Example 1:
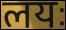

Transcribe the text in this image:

लयः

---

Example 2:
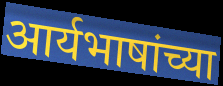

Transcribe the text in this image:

आर्यभाषांच्या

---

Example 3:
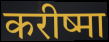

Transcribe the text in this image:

करीष्मा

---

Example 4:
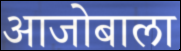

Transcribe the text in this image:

आजोबाला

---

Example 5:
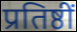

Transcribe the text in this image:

प्रतिष्ठीं